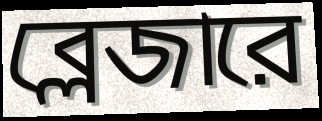
ব্লেজারে